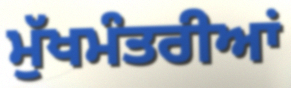
ਮੁੱਖਮੰਤਰੀਆਂ